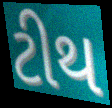
ટીથ